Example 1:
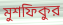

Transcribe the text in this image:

মুশফিকুর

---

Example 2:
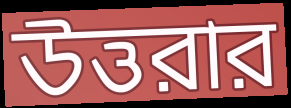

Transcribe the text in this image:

উত্তরার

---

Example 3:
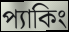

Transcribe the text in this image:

প্যাকিং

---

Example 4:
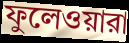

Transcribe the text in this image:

ফুলেওয়ারা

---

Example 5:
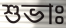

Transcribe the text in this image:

শুভাঃ